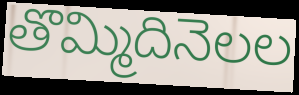
తొమ్మిదినెలల